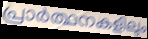
പ്രാർത്ഥനകളിലും